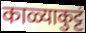
काळ्याकुट्टं